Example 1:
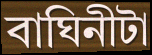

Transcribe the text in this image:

বাঘিনীটা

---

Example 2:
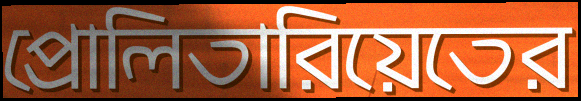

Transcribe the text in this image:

প্রোলিতারিয়েতের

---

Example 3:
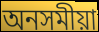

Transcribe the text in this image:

অনসমীয়া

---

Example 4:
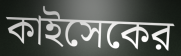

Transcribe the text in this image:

কাইসেকের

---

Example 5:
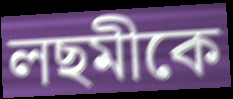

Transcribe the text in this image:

লছমীকে